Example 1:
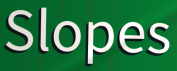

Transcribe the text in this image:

Slopes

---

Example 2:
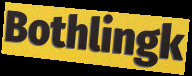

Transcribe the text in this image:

Bothlingk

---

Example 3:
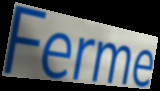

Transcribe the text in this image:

Ferme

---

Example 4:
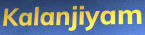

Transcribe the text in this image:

Kalanjiyam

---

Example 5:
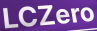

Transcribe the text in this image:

LCZero